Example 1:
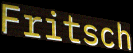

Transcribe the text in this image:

Fritsch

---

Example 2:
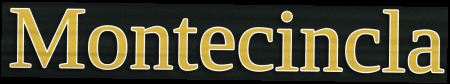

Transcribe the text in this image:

Montecincla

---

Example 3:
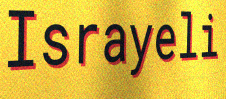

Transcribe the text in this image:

Israyeli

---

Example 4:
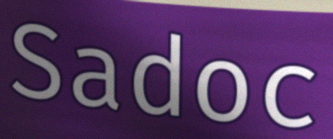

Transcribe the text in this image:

Sadoc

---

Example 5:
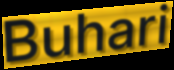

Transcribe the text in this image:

Buhari